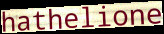
hathelione